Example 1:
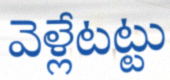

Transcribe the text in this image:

వెళ్లేటట్టు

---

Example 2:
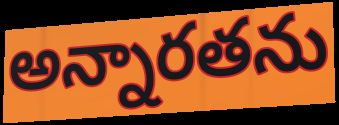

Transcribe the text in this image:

అన్నారతను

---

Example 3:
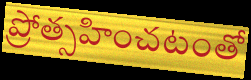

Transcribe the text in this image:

ప్రోత్సహించటంతో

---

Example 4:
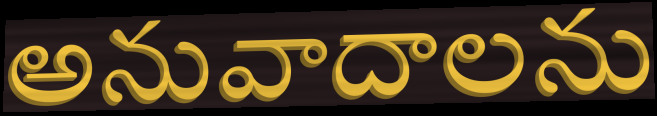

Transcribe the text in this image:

అనువాదాలను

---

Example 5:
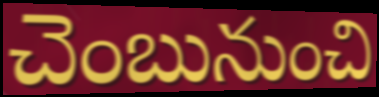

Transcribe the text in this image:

చెంబునుంచి